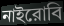
নাইরোবি